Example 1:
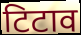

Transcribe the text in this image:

टिटाव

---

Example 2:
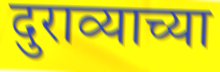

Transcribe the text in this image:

दुराव्याच्या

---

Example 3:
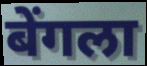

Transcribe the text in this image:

बेंगला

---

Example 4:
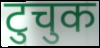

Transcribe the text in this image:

टुचुक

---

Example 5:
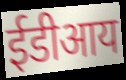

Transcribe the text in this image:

ईडीआय